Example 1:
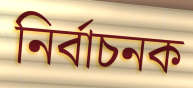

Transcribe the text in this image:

নিৰ্বাচনক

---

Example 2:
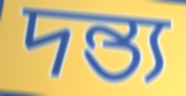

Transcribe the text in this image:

দন্ত্য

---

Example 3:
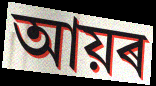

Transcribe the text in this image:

আয়ৰ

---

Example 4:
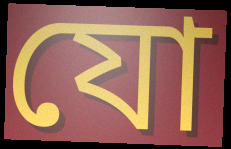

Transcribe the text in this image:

যো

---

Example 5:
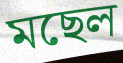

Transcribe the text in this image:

মছেল